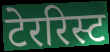
टेररिस्ट